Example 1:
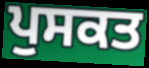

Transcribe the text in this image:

ਪੁਸਕਤ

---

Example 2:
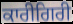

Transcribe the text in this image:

ਕਾਰੀਗਿਰੀ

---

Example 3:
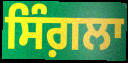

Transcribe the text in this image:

ਸਿੰਗ਼ਲਾ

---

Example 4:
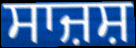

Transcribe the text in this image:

ਸਾਜ਼ਸ਼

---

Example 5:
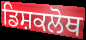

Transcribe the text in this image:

ਡਿਸ਼ਕਲੋਥ